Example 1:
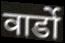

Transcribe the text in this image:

वार्डो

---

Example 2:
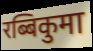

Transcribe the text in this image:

रब्बिकुमा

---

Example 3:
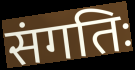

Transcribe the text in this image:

संगतिः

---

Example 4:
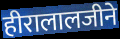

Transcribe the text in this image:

हीरालालजीने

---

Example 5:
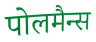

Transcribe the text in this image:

पोलमैन्स